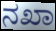
ನಖಾ